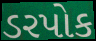
ડરપોક